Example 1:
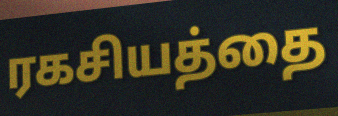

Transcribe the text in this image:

ரகசியத்தை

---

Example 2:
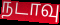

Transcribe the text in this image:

நடாவு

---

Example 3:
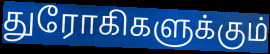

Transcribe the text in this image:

துரோகிகளுக்கும்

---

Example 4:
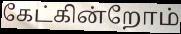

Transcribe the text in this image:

கேட்கின்றோம்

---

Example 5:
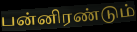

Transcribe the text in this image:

பன்னிரண்டும்